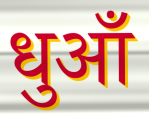
धुआँ